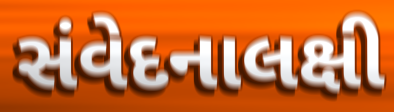
સંવેદનાલક્ષી